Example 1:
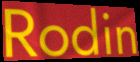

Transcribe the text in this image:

Rodin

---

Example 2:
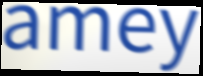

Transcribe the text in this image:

amey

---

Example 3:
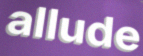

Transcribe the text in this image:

allude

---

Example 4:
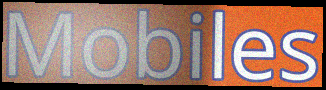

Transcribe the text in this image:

Mobiles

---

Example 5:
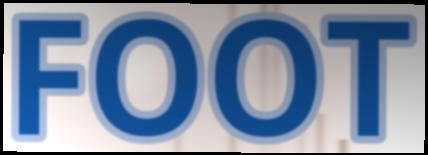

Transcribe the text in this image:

FOOT